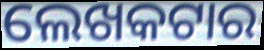
ଲେଖକଟାର